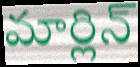
మార్లిన్